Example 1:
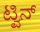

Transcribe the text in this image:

ಟ್ವಿನ್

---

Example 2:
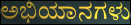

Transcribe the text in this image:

ಅಭಿಯಾನಗಳು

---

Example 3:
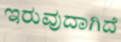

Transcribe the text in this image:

ಇರುವುದಾಗಿದೆ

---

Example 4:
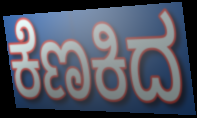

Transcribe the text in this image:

ಕೆಣಕಿದ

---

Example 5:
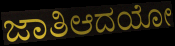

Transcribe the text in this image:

ಜಾತಿಆದಯೋ